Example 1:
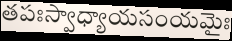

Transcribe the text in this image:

తపఃస్వాధ్యాయసంయమైః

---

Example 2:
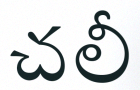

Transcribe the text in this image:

చలీ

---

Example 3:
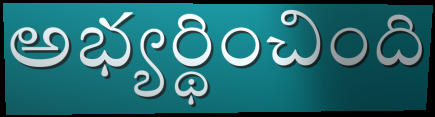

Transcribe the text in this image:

అభ్యర్థించింది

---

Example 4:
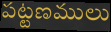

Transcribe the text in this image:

పట్టణములు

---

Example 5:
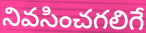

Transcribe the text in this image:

నివసించగలిగే